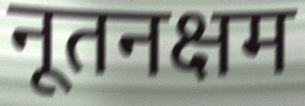
नूतनक्षम